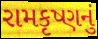
રામકૃષ્ણનું